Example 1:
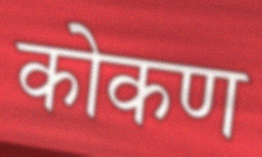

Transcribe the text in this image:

कोकण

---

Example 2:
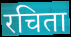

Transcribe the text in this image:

रचिता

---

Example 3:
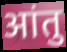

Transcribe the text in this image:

आंतु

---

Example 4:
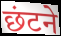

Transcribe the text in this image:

छंटने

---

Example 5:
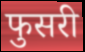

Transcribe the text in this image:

फुसरी